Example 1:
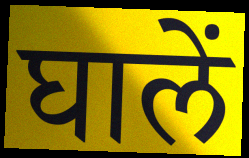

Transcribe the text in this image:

घालें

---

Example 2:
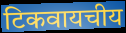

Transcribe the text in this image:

टिकवायचीय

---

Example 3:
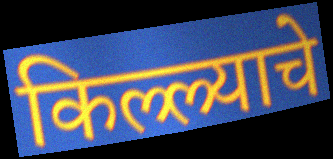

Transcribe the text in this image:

किल्ल्याचे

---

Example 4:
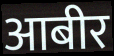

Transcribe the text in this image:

आबीर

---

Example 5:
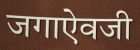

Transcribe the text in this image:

जगाऐवजी